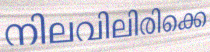
നിലവിലിരിക്കെ